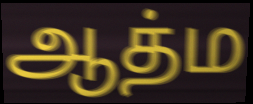
ஆத்ம